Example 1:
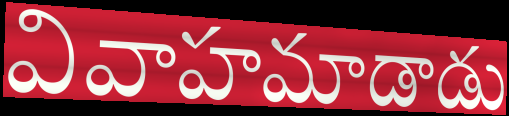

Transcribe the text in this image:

వివాహమాడాడు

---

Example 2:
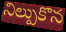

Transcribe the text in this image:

నిల్పుకొన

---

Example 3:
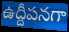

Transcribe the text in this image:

ఉద్దీపనగా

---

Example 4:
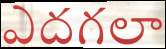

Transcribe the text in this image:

ఎదగలా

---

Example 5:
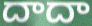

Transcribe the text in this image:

దాదా